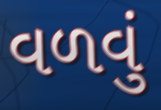
વળવું